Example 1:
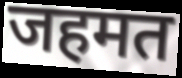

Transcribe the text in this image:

जहमत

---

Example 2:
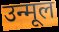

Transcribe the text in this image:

उन्मूल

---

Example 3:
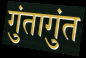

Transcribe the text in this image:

गुंतागुंत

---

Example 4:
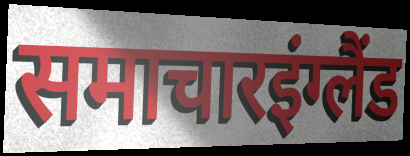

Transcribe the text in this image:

समाचारइंग्लैंड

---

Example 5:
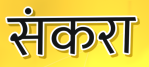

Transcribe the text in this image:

संकरा